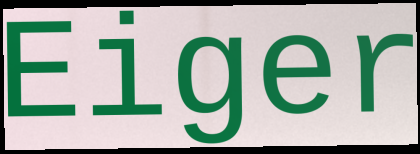
Eiger